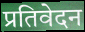
प्रतिवेदन